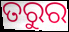
ତରୁର